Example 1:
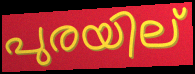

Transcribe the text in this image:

പുരയില്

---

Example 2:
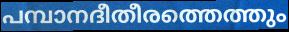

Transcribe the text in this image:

പമ്പാനദീതീരത്തെത്തും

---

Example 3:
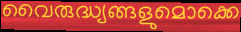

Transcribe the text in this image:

വൈരുദ്ധ്യങ്ങളുമൊക്കെ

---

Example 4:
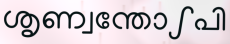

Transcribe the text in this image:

ശൃണ്വന്തോഽപി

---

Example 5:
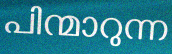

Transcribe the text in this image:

പിന്മാറുന്ന